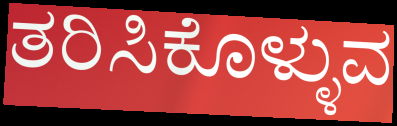
ತರಿಸಿಕೊಳ್ಳುವ